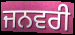
ਜਨਵਰੀ